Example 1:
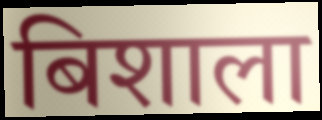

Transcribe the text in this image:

बिशाला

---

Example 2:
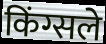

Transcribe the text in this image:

किंग्सले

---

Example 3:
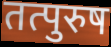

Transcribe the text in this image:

तत्पुरुष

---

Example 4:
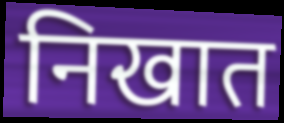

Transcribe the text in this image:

निखात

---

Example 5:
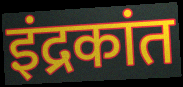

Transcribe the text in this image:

इंद्रकांत